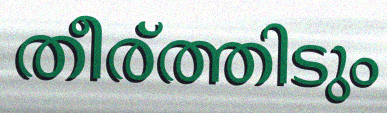
തീര്ത്തിടും